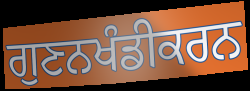
ਗੁਣਨਖੰਡੀਕਰਨ